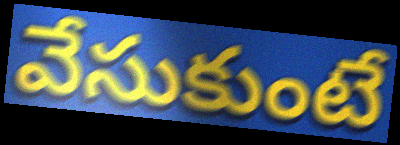
వేసుకుంటే